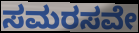
ಸಮರಸವೇ